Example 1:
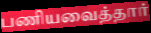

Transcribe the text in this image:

பணியவைத்தார்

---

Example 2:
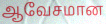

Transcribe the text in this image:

ஆவேசமான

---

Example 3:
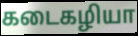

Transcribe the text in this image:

கடைகழியா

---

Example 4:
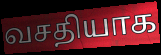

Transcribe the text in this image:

வசதியாக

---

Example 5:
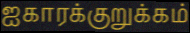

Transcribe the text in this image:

ஐகாரக்குறுக்கம்